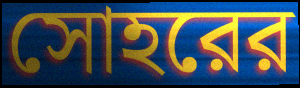
সোহরের